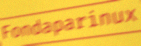
Fondaparinux